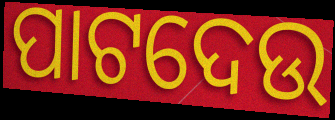
ପାଟଦେଉ